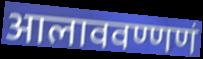
आलाववण्णणं